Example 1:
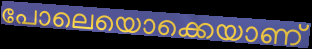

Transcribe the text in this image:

പോലെയൊക്കെയാണ്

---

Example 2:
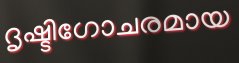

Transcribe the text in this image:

ദൃഷ്ടിഗോചരമായ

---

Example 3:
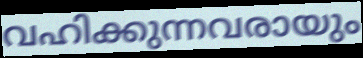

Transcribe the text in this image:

വഹിക്കുന്നവരായും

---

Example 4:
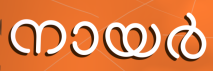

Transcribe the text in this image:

നായർ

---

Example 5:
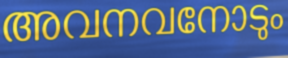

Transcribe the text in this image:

അവനവനോടും